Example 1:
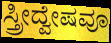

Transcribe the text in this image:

ಸ್ತ್ರೀದ್ವೇಷವೂ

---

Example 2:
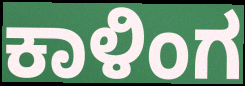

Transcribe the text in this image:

ಕಾಳಿಂಗ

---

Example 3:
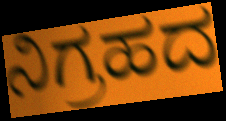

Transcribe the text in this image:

ನಿಗ್ರಹದ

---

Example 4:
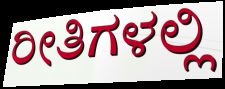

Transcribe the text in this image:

ರೀತಿಗಳಲ್ಲಿ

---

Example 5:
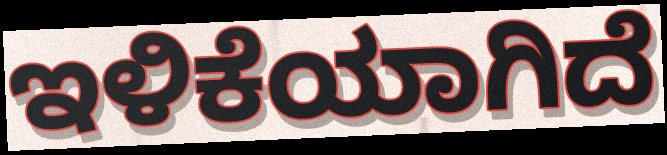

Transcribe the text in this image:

ಇಳಿಕೆಯಾಗಿದೆ